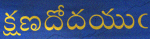
క్షణదోదయుఁ